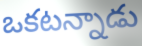
ఒకటన్నాడు